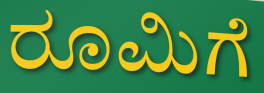
ರೂಮಿಗೆ